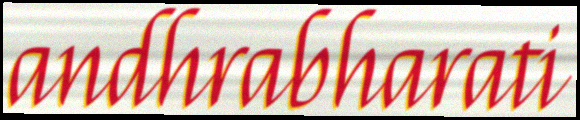
andhrabharati